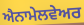
ਐਨਾਮੇਲਵੇਅਰ